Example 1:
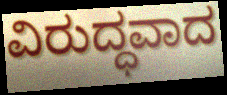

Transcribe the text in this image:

ವಿರುದ್ಧವಾದ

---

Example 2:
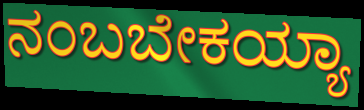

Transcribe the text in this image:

ನಂಬಬೇಕಯ್ಯಾ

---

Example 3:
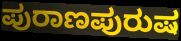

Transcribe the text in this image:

ಪುರಾಣಪುರುಷ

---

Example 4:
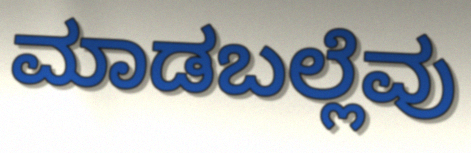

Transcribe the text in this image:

ಮಾಡಬಲ್ಲೆವು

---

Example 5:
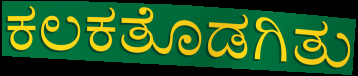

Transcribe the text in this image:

ಕಲಕತೊಡಗಿತು